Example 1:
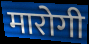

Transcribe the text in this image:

मारोगी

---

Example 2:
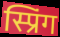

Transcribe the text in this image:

स्प्रिंग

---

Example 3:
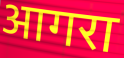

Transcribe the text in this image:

आगरा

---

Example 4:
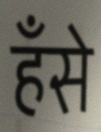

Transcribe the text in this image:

हँसे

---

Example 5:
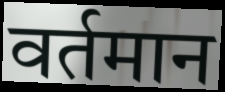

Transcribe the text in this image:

वर्तमान